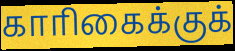
காரிகைக்குக்